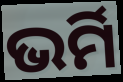
ଭର୍ମି